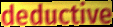
deductive